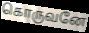
கொருவனே